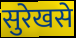
सुरेखसे